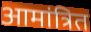
आमांत्रित